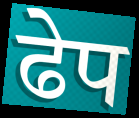
ढेप